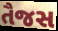
તૈજસ